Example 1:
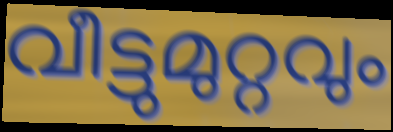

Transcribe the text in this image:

വീട്ടുമുറ്റവും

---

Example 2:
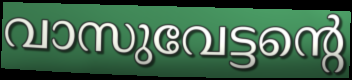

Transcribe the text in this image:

വാസുവേട്ടന്റെ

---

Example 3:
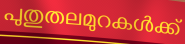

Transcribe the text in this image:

പുതുതലമുറകൾക്ക്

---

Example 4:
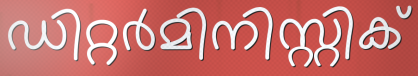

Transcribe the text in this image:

ഡിറ്റർമിനിസ്റ്റിക്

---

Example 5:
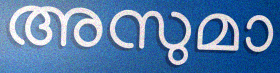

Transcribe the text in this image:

അസുമാ